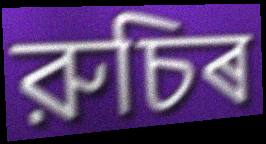
ৰুচিৰ